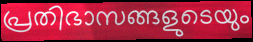
പ്രതിഭാസങ്ങളുടെയും